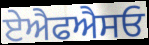
ਏਐਫਐਸਓ